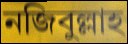
নজিবুল্লাহ